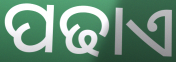
ପଢାଏ